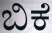
ಬಿಕೆ